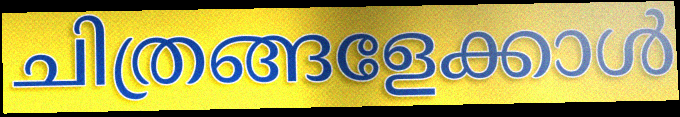
ചിത്രങ്ങളേക്കാൾ